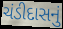
ચંડીદાસનું